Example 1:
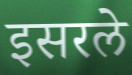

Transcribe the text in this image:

इसरले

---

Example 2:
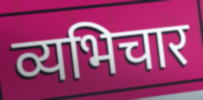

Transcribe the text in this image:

व्यभिचार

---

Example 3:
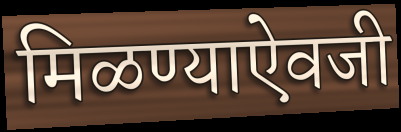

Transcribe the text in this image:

मिळण्याऐवजी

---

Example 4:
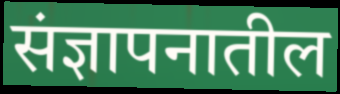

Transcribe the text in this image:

संज्ञापनातील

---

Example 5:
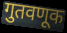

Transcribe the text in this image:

गुतवणूक